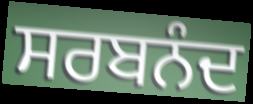
ਸਰਬਨੰਦ